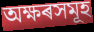
অক্ষৰসমূহ